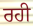
ਰਹੀ